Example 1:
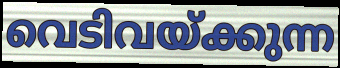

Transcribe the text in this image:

വെടിവയ്ക്കുന്ന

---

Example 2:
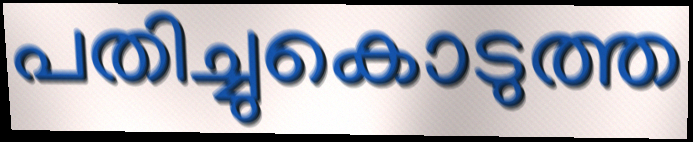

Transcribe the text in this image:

പതിച്ചുകൊടുത്ത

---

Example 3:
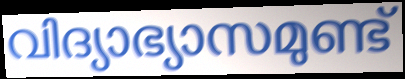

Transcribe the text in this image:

വിദ്യാഭ്യാസമുണ്ട്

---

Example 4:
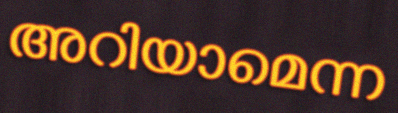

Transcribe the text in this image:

അറിയാമെന്ന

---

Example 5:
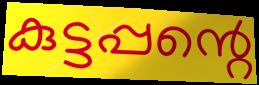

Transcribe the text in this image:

കുട്ടപ്പന്റെ